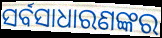
ସର୍ବସାଧାରଣଙ୍କର